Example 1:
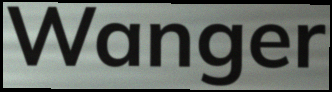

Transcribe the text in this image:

Wanger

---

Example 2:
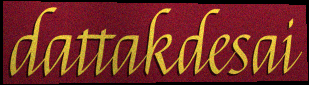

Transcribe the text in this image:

dattakdesai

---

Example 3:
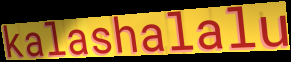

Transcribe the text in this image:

kalashalalu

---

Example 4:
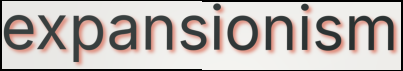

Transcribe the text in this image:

expansionism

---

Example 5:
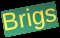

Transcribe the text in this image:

Brigs